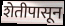
शेतीपासून